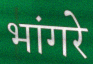
भांगरे